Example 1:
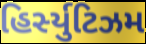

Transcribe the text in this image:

હિર્સ્યુટિઝમ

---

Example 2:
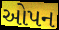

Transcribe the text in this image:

ઓપન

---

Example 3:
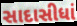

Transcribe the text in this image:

સાદાસીધાં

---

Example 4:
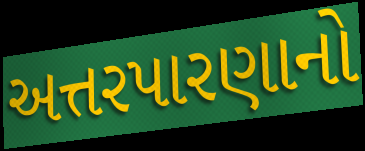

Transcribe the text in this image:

અત્તરપારણાનો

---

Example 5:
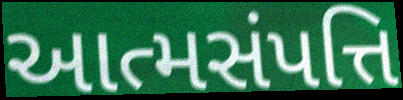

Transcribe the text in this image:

આત્મસંપત્તિ